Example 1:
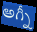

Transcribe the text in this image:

అగ్నీ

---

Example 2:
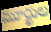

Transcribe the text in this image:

మూర్ఖుల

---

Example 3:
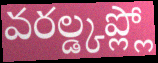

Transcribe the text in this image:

వరల్డ్కప్ల్లో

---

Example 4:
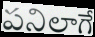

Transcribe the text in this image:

పనిలాగే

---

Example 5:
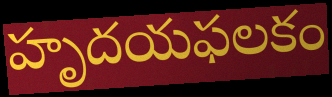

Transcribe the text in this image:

హృదయఫలకం